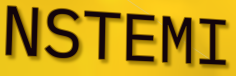
NSTEMI